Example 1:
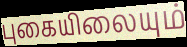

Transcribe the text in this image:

புகையிலையும்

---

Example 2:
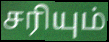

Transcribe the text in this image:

சரியும்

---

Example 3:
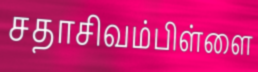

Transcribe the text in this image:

சதாசிவம்பிள்ளை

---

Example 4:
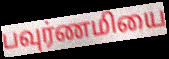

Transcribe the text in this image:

பவுர்ணமியை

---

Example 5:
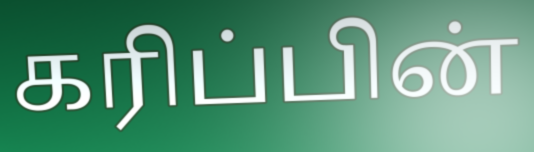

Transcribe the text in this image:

கரிப்பின்